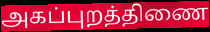
அகப்புறத்திணை